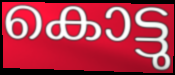
കൊട്ടു